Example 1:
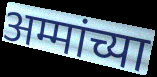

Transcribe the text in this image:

अम्मांच्या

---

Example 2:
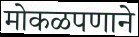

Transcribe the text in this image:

मोकळपणाने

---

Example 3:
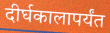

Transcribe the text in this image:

दीर्घकालापर्यंत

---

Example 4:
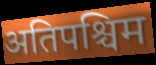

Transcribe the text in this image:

अतिपश्चिम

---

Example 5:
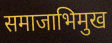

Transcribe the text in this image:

समाजाभिमुख